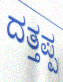
ದತ್ತಪ್ಪ